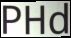
PHd